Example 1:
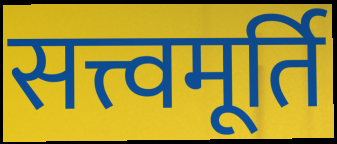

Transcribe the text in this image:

सत्त्वमूर्ति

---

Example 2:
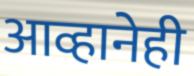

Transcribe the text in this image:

आव्हानेही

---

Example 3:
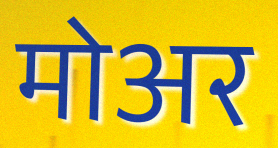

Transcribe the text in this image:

मोअर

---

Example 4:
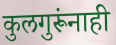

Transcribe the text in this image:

कुलगुरूंनाही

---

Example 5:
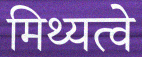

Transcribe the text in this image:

मिथ्यत्वे